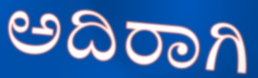
ಅದಿರಾಗಿ